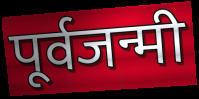
पूर्वजन्मी